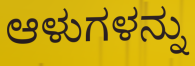
ಆಳುಗಳನ್ನು